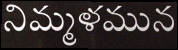
నిమ్మళమున